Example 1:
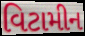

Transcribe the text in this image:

વિટામીન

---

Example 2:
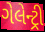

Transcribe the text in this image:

ગેલેન્ટ્રી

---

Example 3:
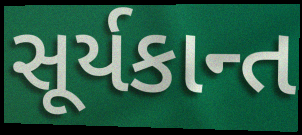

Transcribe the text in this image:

સૂર્યકાન્ત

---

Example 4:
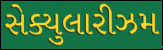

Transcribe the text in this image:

સેક્યુલારીઝમ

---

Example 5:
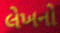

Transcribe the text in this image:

લેખનો